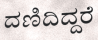
ದಣಿದಿದ್ದರೆ